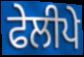
ਫੇਲੀਪੇ